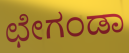
ಛೇಗಂಡಾ